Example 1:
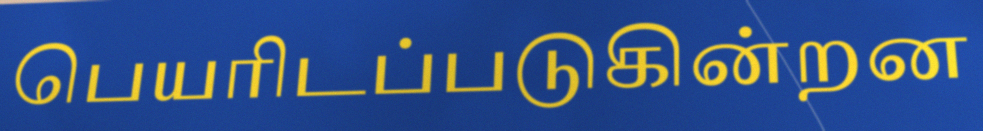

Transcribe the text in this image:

பெயரிடப்படுகின்றன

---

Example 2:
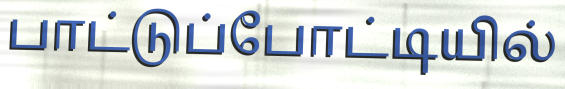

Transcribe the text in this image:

பாட்டுப்போட்டியில்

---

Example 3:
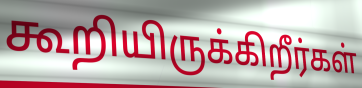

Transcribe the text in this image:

கூறியிருக்கிறீர்கள்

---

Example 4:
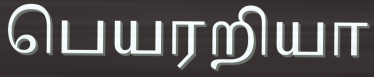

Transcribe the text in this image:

பெயரறியா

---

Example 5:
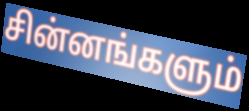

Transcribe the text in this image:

சின்னங்களும்